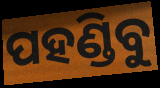
ପହଣ୍ଡିବୁ